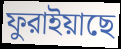
ফুরাইয়াছে